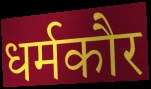
धर्मकौर